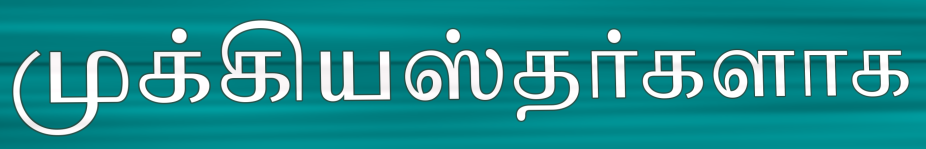
முக்கியஸ்தர்களாக